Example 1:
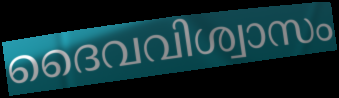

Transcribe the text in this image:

ദൈവവിശ്വാസം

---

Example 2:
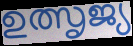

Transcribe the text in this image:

ഉത്സൃജ്യ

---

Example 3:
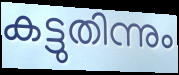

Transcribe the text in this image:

കട്ടുതിന്നും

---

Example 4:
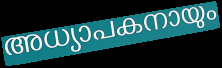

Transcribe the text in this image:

അധ്യാപകനായും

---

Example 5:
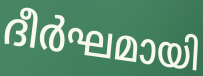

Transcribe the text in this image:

ദീർഘമായി